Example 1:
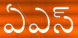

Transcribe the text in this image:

ఏఎస్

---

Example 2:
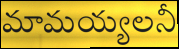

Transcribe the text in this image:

మామయ్యలనీ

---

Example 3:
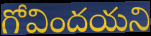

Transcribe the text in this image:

గోవిందయని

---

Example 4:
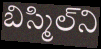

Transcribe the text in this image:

బిస్మిల్‌ని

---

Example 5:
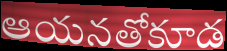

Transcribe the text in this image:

ఆయనతోకూడ